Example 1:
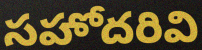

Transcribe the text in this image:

సహోదరివి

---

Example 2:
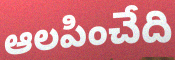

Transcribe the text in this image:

ఆలపించేది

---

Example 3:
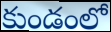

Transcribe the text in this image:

కుండంలో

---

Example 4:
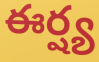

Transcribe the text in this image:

ఈర్ష్య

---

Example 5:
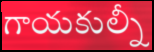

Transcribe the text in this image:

గాయకుల్నీ